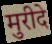
मुरीदे